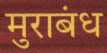
मुराबंध